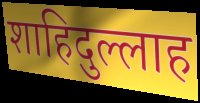
शाहिदुल्लाह